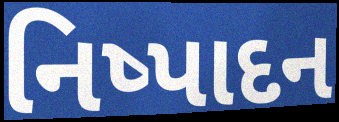
નિષ્પાદન